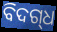
ବିଦଗ୍‌ଧ